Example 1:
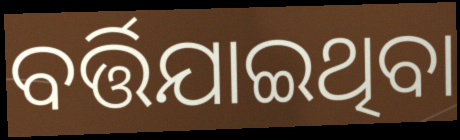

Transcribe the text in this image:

ବର୍ତ୍ତିଯାଇଥିବା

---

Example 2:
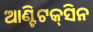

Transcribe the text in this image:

ଆଣ୍ଟିଟକ୍‌ସିନ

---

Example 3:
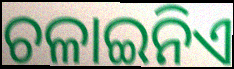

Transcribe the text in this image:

ଚଳାଇନିଏ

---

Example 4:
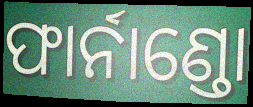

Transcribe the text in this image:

ଫାର୍ନାଣ୍ଡୋ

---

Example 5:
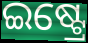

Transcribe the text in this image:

ଇଷ୍ଟ୍ରେ